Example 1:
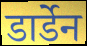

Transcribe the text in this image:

डार्डेन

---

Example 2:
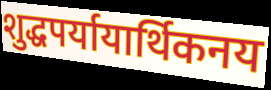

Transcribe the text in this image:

शुद्धपर्यायार्थिकनय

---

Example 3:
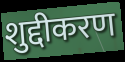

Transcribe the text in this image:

शुद्दीकरण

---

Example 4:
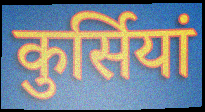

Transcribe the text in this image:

कुर्सियां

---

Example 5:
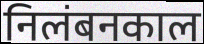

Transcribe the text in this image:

निलंबनकाल